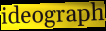
ideograph